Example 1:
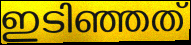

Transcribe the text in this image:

ഇടിഞ്ഞത്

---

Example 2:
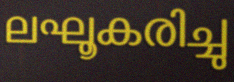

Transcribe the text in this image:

ലഘൂകരിച്ചു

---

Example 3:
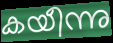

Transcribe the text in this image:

കയീന്നു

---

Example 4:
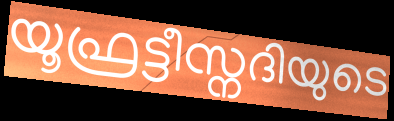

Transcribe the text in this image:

യൂഫ്രട്ടീസ്നദിയുടെ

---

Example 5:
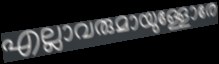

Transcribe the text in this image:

എല്ലാവരുമായുള്ളോരേ